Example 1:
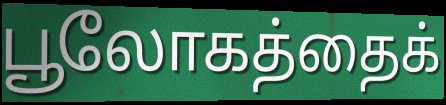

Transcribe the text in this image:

பூலோகத்தைக்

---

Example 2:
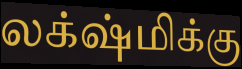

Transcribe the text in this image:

லக்‌ஷ்மிக்கு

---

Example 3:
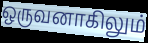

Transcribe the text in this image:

ஒருவனாகிலும்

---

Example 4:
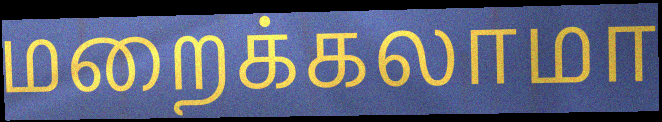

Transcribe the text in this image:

மறைக்கலாமா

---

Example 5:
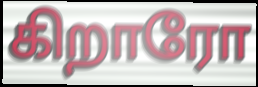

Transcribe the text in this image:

கிறாரோ